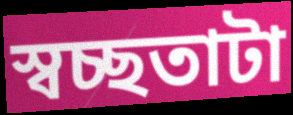
স্বচ্ছতাটা